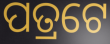
ପତ୍ରଟେ